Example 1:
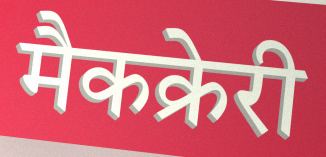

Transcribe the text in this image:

मैकक्रेरी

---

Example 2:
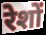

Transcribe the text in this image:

रेशों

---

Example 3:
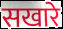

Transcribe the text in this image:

सखारे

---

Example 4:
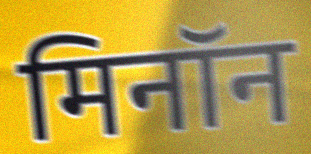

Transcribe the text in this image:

मिनॉन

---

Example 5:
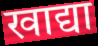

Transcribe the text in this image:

खाद्या